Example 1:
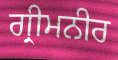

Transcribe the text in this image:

ਗ੍ਰੀਮਨੀਰ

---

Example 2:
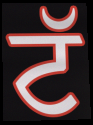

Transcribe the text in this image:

ਟੱ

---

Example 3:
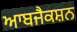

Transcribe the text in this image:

ਆਬਜੈਕਸ਼ਨ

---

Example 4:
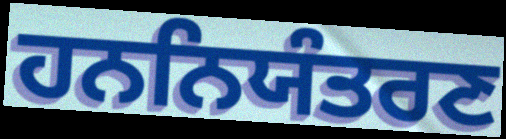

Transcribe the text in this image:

ਹਨਨਿਯੰਤਰਣ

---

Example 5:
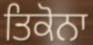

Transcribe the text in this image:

ਤਿਕੋਨਾ